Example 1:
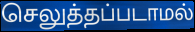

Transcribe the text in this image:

செலுத்தப்படாமல்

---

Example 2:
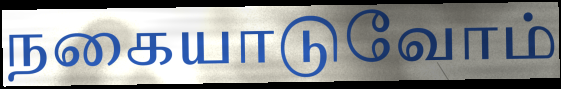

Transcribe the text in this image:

நகையாடுவோம்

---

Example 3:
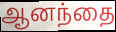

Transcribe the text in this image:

ஆனந்தை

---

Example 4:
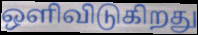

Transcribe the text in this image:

ஒளிவிடுகிறது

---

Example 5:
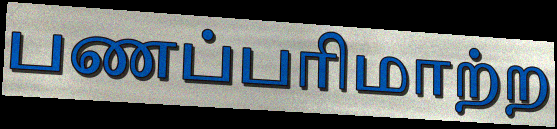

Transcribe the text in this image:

பணப்பரிமாற்ற